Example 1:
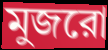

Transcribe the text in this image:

মুজরো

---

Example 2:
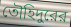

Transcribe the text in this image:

তৌহিদুরের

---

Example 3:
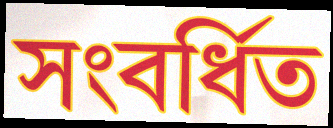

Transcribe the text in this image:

সংবর্ধিত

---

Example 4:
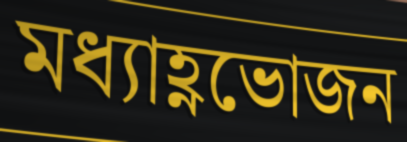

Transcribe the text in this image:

মধ্যাহ্ণভোজন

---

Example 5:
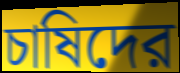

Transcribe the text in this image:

চাষিদের